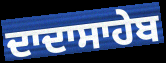
ਦਾਦਾਸਾਹੇਬ